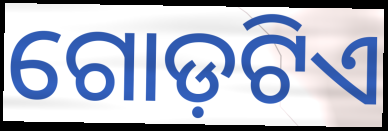
ଗୋଡ଼ଟିଏ